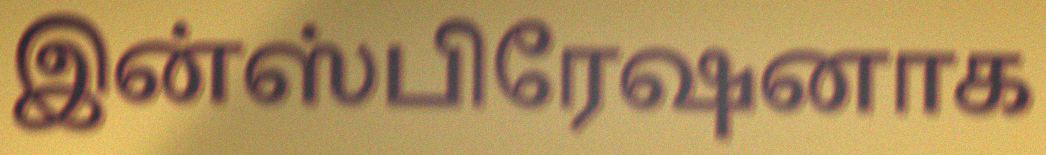
இன்ஸ்பிரேஷனாக